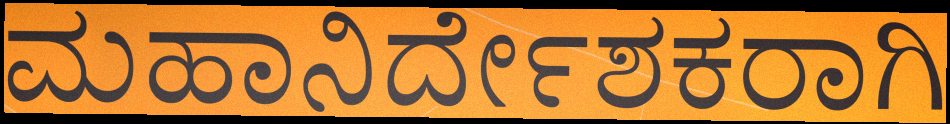
ಮಹಾನಿರ್ದೇಶಕರಾಗಿ